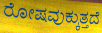
ರೋಷವುಕ್ಕುತ್ತದೆ